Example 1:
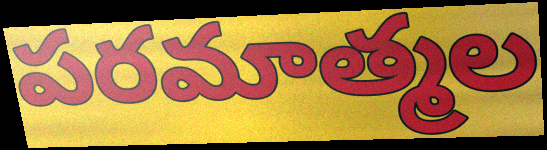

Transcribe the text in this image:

పరమాత్మల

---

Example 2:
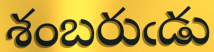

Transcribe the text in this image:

శంబరుఁడు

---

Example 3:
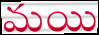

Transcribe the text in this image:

మయి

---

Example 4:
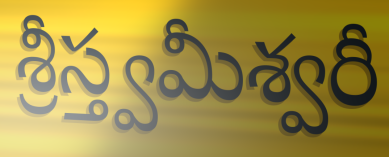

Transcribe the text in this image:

శ్రీస్త్వమీశ్వరీ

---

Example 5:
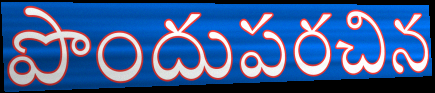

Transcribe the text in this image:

పొందుపరచిన